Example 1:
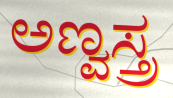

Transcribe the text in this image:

ಅಣ್ವಸ್ತ್ರ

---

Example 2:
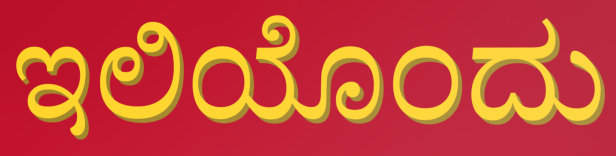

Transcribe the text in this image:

ಇಲಿಯೊಂದು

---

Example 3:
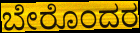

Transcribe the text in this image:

ಬೇರೊಂದರ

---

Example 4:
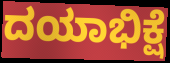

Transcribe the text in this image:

ದಯಾಭಿಕ್ಷೆ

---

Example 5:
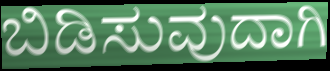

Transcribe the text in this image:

ಬಿಡಿಸುವುದಾಗಿ